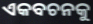
ଏକବଚନକୁ